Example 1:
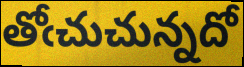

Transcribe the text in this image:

తోఁచుచున్నదో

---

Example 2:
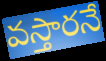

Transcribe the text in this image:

వస్తారనే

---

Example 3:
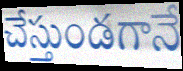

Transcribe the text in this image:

చేస్తుండగానే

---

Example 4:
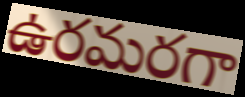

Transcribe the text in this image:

ఉరమరగా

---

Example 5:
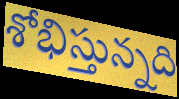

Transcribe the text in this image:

శోభిస్తున్నది